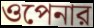
ওপেনার